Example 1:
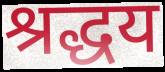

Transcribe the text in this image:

श्रद्धय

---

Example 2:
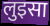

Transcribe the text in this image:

लुइसा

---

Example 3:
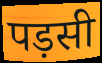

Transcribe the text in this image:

पड़सी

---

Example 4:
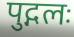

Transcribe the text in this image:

पुद्गलः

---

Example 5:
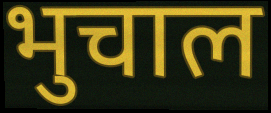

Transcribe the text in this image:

भुचाल